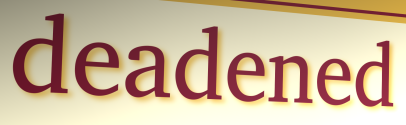
deadened